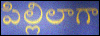
పిల్లిలాగా